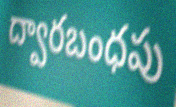
ద్వారబంధపు